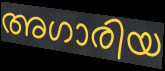
അഗാരിയ